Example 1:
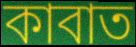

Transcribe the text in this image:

কাবাত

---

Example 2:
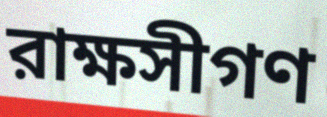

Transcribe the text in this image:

রাক্ষসীগণ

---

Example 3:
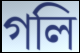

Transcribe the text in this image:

গলি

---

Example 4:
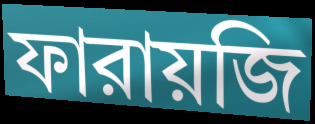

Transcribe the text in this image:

ফারায়জি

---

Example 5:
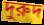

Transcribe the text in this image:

দুরুদ